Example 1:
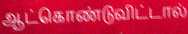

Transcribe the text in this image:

ஆட்கொண்டுவிட்டால்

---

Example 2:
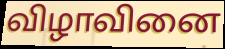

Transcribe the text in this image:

விழாவினை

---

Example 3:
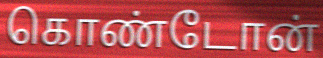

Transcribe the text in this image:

கொண்டோன்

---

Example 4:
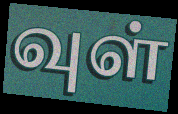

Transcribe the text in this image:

வுள்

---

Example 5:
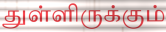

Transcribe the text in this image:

துள்ளிருக்கும்